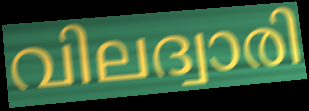
വിലദ്വാരി